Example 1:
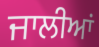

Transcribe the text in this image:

ਜਾਲੀਆਂ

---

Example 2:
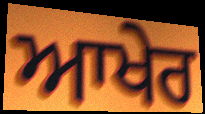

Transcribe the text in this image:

ਆਖੇਰ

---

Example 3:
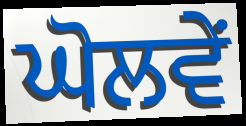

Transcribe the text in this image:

ਘੋਲਵੇਂ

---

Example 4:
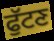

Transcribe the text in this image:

ਫੁੱਟਣ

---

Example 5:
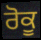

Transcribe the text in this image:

ਰੋਕੂ